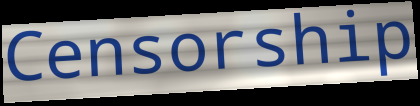
Censorship